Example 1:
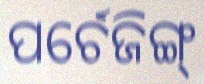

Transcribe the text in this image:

ପର୍ଚେଜିଙ୍ଗ୍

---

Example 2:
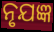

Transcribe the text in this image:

ନୃଯଜ୍ଞ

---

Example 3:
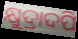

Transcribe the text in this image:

କ୍ଷୁଦ୍ରାଦପି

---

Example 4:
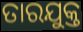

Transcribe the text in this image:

ତାରଯୁକ୍ତ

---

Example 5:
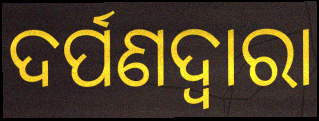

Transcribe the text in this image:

ଦର୍ପଣଦ୍ୱାରା